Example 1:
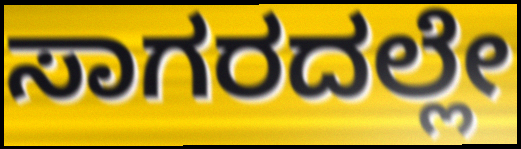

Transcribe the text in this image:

ಸಾಗರದಲ್ಲೇ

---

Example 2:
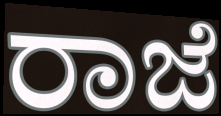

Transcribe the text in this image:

ರಾಜೆ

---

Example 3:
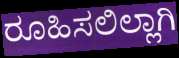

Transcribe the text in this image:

ರೂಹಿಸಲಿಲ್ಲಾಗಿ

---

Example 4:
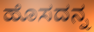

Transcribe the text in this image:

ಹೊಸದನ್ನ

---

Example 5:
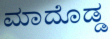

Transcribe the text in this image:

ಮಾದೊಡ್ಡ